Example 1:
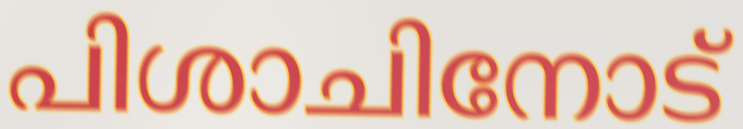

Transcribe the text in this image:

പിശാചിനോട്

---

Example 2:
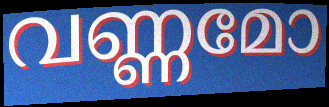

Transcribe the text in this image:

വണ്ണമോ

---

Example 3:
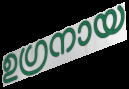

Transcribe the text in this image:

ഉഗ്രനായ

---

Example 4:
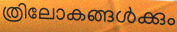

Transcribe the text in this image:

ത്രിലോകങ്ങൾക്കും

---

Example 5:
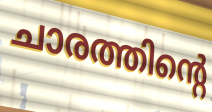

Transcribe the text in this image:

ചാരത്തിന്റെ